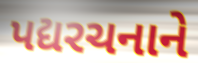
પદ્યરચનાને